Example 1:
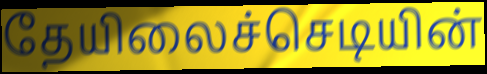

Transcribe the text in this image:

தேயிலைச்செடியின்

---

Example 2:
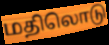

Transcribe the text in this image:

மதிலொடு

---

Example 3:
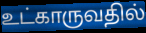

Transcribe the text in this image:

உட்காருவதில்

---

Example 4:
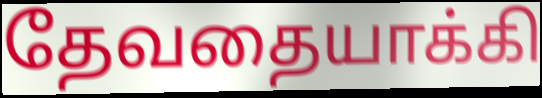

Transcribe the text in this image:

தேவதையாக்கி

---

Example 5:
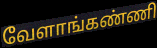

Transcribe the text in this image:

வேளாங்கண்ணி